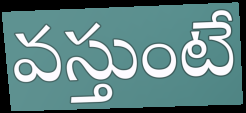
వస్తుంటే